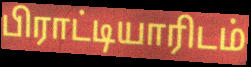
பிராட்டியாரிடம்